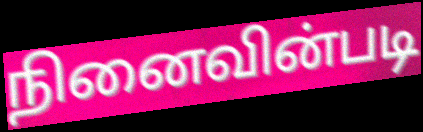
நினைவின்படி